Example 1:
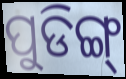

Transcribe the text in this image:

ପୁଡିଙ୍ଗ୍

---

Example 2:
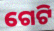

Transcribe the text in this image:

ଗେଟି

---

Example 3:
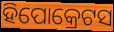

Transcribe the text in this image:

ହିପୋକ୍ରେଟସ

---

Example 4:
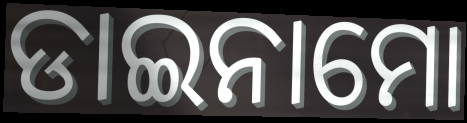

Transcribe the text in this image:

ଡାଇନାମୋ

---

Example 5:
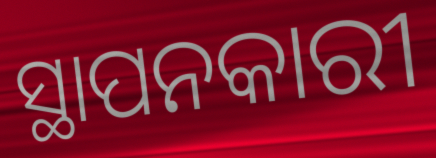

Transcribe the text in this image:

ସ୍ଥାପନକାରୀ